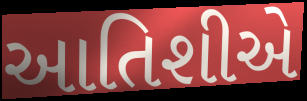
આતિશીએ